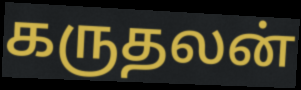
கருதலன்